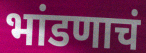
भांडणाचं